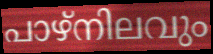
പാഴ്നിലവും